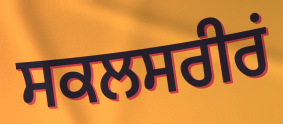
ਸਕਲਸਰੀਰਂ